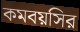
কমবয়সির